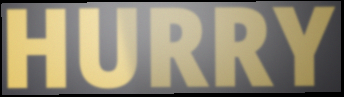
HURRY